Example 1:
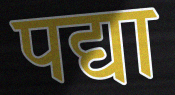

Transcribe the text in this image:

पद्या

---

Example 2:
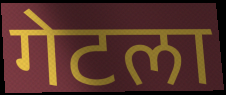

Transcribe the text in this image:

गेटला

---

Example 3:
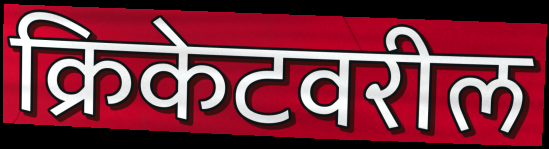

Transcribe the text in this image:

क्रिकेटवरील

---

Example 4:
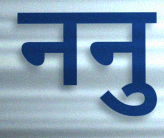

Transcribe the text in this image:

ननु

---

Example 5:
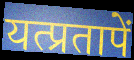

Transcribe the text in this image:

यत्प्रतापें